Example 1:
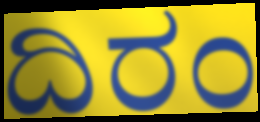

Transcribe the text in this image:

ದಿರಂ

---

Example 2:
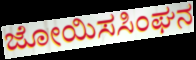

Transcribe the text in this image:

ಜೋಯಿಸಸಿಂಘನ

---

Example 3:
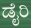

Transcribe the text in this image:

ಡೈರಿ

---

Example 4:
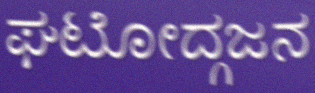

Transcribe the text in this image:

ಘಟೋದ್ಗಜನ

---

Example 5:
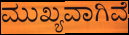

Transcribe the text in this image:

ಮುಖ್ಯವಾಗಿವೆ